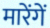
मारेंगें